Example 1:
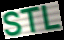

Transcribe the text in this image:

STL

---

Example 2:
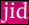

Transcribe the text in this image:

jid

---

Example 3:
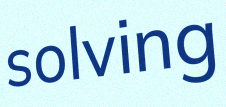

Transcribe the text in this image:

solving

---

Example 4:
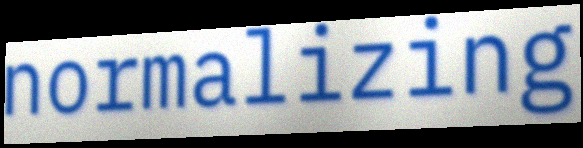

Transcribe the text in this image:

normalizing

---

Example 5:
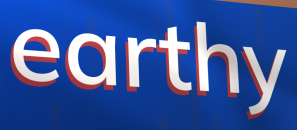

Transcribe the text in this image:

earthy